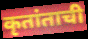
कृतांताची